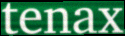
tenax